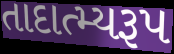
તાદાત્મ્યરૂપ